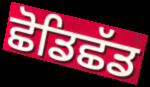
ਛੋਡਿਛੱਡ